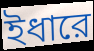
ইধারে